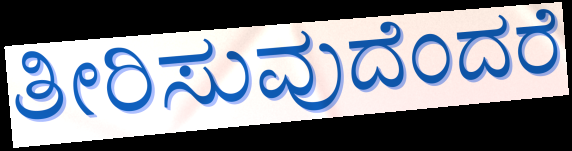
ತೀರಿಸುವುದೆಂದರೆ